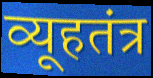
व्यूहतंत्र